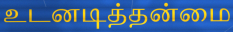
உடனடித்தன்மை